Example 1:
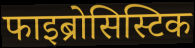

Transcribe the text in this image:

फाइब्रोसिस्टिक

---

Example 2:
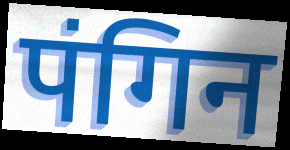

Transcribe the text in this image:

पंगिन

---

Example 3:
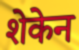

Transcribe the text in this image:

शेकेन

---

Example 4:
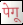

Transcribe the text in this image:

पेगू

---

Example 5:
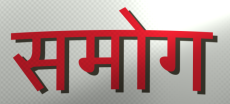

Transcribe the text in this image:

समोग